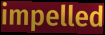
impelled